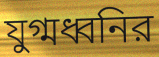
যুগ্মধ্বনির